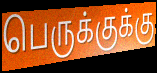
பெருக்குக்கு